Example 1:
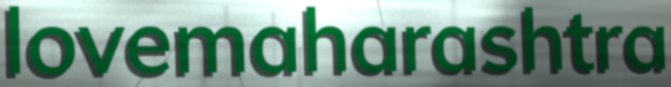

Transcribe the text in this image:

lovemaharashtra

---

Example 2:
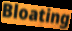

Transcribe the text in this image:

Bloating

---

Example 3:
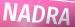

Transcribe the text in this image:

NADRA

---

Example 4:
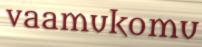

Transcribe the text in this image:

vaamukomu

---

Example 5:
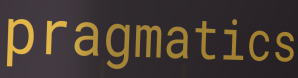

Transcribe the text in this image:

pragmatics